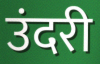
उंदरी